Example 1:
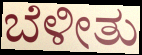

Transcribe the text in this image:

ಬೆಳೀತು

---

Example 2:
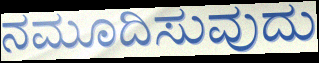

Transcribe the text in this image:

ನಮೂದಿಸುವುದು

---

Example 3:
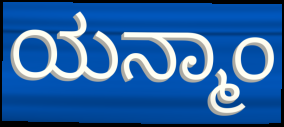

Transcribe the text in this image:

ಯನ್ಮಾಂ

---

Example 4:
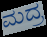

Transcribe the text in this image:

ಮದ್ರ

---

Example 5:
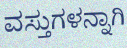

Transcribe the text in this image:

ವಸ್ತುಗಳನ್ನಾಗಿ